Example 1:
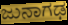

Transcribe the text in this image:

ಜುನಾಗಢ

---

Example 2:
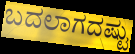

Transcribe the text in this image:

ಬದಲಾಗದಷ್ಟು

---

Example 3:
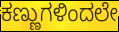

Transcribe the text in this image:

ಕಣ್ಣುಗಳಿಂದಲೇ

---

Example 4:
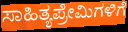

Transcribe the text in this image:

ಸಾಹಿತ್ಯಪ್ರೇಮಿಗಳಿಗೆ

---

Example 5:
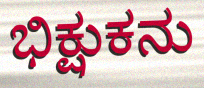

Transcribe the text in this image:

ಭಿಕ್ಷುಕನು